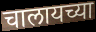
चालायच्या